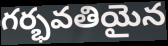
గర్భవతియైన